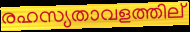
രഹസ്യതാവളത്തില്